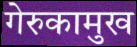
गेरुकामुख